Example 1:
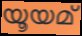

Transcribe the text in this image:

യൂയമ്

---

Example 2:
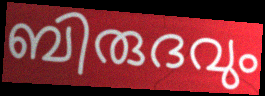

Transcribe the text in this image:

ബിരുദവും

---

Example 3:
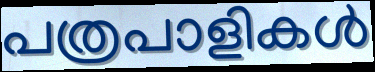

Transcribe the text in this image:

പത്രപാളികൾ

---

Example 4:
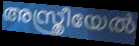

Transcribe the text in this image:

അസ്ത്രീയേൽ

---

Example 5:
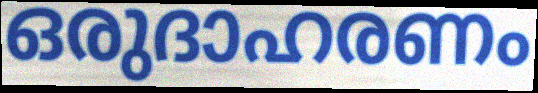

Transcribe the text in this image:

ഒരുദാഹരണം